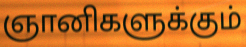
ஞானிகளுக்கும்